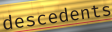
descedents